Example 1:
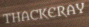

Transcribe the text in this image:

THACKERAY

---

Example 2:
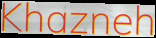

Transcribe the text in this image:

Khazneh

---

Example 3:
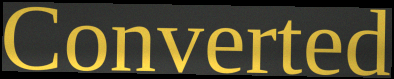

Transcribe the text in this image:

Converted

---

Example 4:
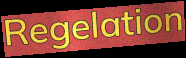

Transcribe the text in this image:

Regelation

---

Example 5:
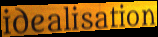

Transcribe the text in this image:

idealisation